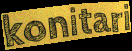
konitari